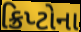
ક્રિપ્ટોના